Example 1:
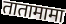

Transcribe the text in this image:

तातामामा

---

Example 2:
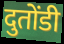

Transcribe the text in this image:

दुतोंडी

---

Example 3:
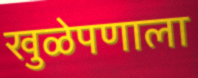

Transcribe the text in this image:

खुळेपणाला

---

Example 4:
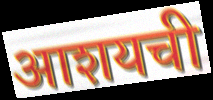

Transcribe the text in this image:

आशयची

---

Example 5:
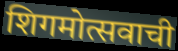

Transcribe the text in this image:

शिगमोत्सवाची